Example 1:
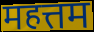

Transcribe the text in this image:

महत्तम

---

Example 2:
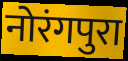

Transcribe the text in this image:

नोरंगपुरा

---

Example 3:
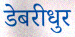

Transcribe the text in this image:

डेबरीधुर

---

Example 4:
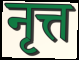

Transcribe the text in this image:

नृत्त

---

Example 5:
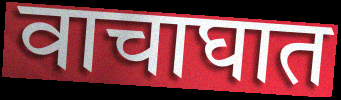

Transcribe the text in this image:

वाचाघात